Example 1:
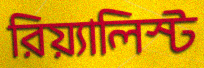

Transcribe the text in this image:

রিয়্যালিস্ট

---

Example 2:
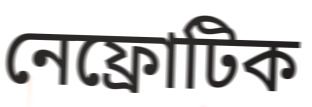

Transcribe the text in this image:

নেফ্রোটিক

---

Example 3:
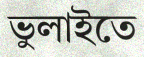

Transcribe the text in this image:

ভুলাইতে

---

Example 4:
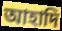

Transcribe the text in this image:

আহাদি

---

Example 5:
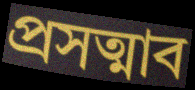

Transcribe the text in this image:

প্রসত্মাব